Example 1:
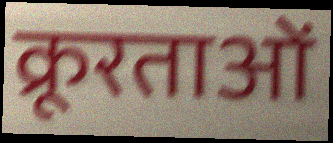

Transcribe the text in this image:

क्रूरताओं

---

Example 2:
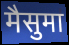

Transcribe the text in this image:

मैसुमा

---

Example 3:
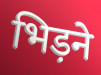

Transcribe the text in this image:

भिड़ने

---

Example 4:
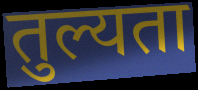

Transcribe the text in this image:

तुल्यता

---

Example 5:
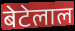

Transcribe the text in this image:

बेटेलाल